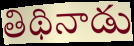
తిథినాడు